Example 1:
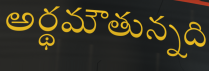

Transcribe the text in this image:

అర్థమౌతున్నది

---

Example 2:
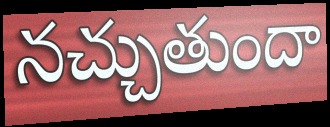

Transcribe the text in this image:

నచ్చుతుందా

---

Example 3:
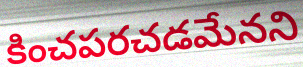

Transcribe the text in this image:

కించపరచడమేనని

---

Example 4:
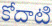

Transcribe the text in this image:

కోదాటి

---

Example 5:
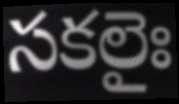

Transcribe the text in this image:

సకలైః